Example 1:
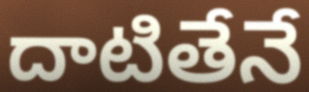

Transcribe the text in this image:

దాటితేనే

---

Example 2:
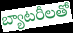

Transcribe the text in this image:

బ్యాటరీలతో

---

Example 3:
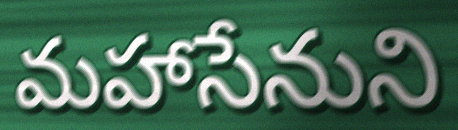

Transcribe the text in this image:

మహాసేనుని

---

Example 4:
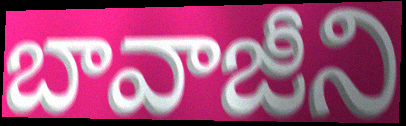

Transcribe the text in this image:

బావాజీని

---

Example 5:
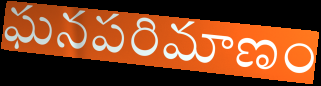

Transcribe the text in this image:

ఘనపరిమాణం